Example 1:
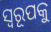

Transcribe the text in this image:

ସ୍ବରୂପକୁ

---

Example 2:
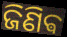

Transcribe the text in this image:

ଜିଣିଵ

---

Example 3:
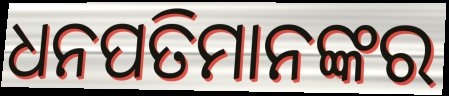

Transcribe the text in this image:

ଧନପତିମାନଙ୍କର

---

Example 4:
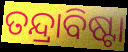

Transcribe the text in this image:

ତନ୍ଦ୍ରାବିଷ୍ଟା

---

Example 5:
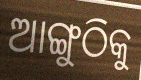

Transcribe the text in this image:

ଆଙ୍ଗୁଠିକୁ